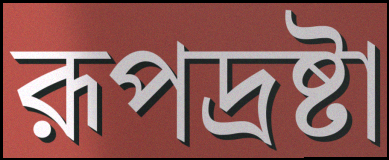
রূপদ্রষ্টা